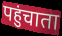
पहुंचाता